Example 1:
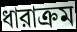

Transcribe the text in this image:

ধারাক্রম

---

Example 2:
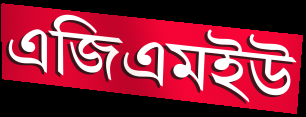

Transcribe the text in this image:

এজিএমইউ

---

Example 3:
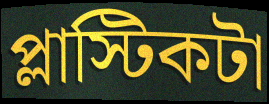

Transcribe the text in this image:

প্লাস্টিকটা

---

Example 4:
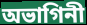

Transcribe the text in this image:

অভাগিনী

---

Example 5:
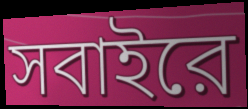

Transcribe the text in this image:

সবাইরে